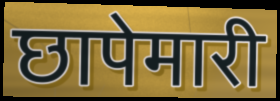
छापेमारी